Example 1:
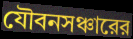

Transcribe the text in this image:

যৌবনসঞ্চারের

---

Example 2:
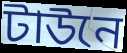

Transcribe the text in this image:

টাউনে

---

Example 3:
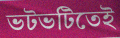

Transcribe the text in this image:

ভটভটিতেই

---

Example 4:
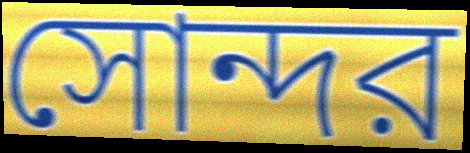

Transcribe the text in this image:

সোন্দর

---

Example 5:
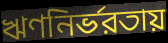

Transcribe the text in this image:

ঋণনির্ভরতায়